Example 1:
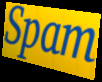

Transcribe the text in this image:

Spam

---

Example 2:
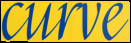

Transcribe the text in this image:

curve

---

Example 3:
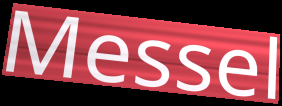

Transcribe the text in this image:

Messel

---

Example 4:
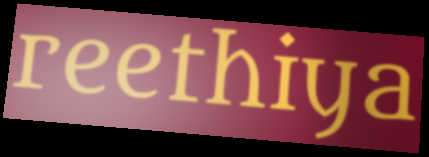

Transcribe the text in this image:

reethiya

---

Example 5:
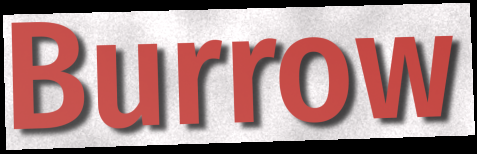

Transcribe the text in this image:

Burrow